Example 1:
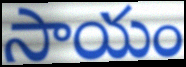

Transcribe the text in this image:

సాయం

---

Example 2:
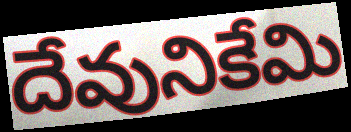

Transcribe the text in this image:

దేవునికేమి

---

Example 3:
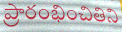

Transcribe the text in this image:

ప్రారంభించితిని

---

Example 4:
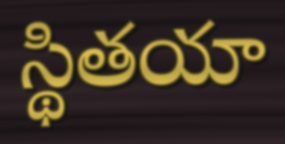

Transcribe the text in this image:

స్థితయా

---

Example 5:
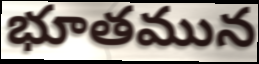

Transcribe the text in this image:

భూతమున